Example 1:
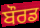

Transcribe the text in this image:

ਬੌਰਡ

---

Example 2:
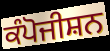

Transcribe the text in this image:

ਕੰਪੋਜੀਸ਼ਨ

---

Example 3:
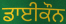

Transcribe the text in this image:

ਡਾਈਕੌਨ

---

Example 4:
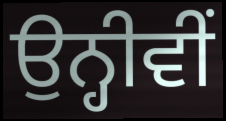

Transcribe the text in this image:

ਉਨ੍ਹੀਵੀਂ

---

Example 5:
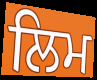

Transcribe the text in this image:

ਲਿਮ